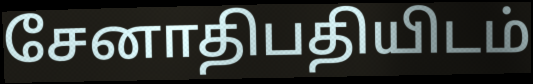
சேனாதிபதியிடம்